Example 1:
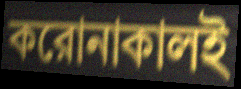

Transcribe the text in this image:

করোনাকালই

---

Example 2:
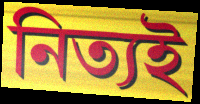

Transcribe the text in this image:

নিত্যই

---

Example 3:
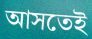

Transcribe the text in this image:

আসতেই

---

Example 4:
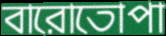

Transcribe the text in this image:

বারোতোপা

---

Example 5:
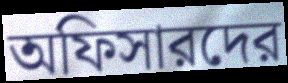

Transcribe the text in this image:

অফিসারদের